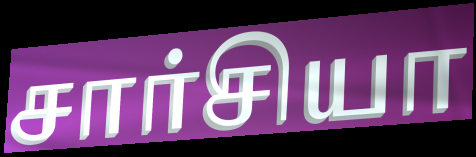
சார்சியா